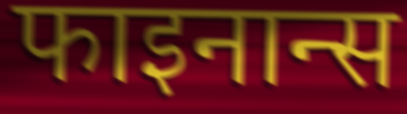
फाइनान्स